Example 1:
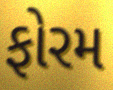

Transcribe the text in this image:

ફોરમ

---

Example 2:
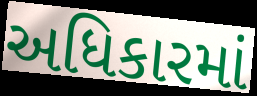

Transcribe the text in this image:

અધિકારમાં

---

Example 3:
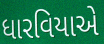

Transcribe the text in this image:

ધારવિયાએ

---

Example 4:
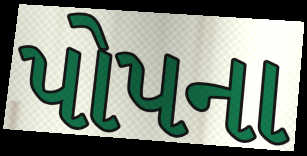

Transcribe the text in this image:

પોપના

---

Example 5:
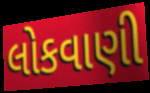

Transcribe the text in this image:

લોકવાણી